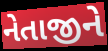
નેતાજીને